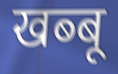
खब्‍बू